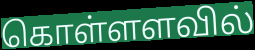
கொள்ளளவில்